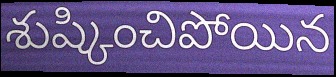
శుష్కించిపోయిన